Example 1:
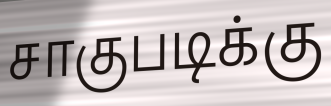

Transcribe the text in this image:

சாகுபடிக்கு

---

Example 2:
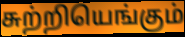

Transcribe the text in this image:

சுற்றியெங்கும்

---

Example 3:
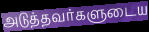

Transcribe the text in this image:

அடுத்தவர்களுடைய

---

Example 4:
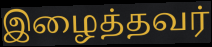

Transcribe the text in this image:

இழைத்தவர்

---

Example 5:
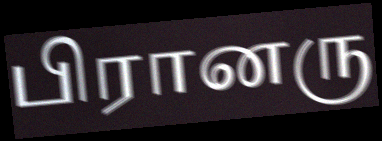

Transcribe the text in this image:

பிரானரு